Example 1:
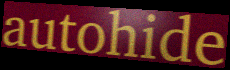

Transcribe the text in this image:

autohide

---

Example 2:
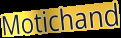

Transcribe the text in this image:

Motichand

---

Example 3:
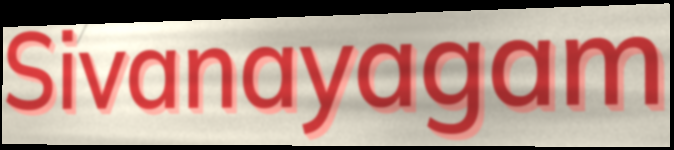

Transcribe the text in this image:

Sivanayagam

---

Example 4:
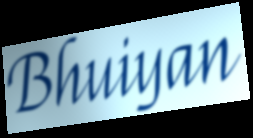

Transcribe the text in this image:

Bhuiyan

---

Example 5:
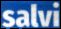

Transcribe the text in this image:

salvi